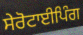
ਸੇਰੋਟਾਈਪਿੰਗ